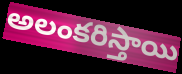
అలంకరిస్తాయి